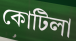
কোটিলা